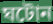
ঘটোন